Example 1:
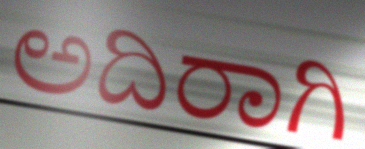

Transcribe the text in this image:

ಅದಿರಾಗಿ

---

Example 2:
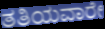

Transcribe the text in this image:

ತತಿಯವಾರೇ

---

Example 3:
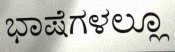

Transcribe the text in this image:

ಭಾಷೆಗಳಲ್ಲೂ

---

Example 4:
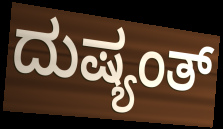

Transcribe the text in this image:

ದುಷ್ಯಂತ್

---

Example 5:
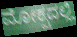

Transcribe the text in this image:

ಮೋಕ್ಷದಲ್ಲಿ